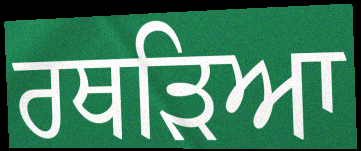
ਰਥੜਿਆ